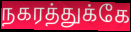
நகரத்துக்கே